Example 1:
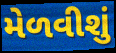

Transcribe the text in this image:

મેળવીશું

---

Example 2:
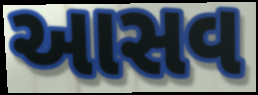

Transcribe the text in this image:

આસવ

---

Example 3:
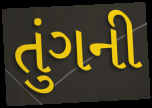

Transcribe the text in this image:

તુંગની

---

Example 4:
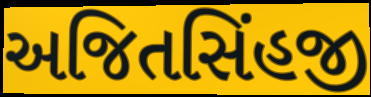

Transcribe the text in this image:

અજિતસિંહજી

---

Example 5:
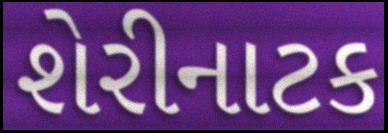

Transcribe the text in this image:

શેરીનાટક